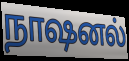
நாஷனல்